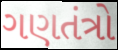
ગણતંત્રો